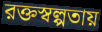
রক্তস্বল্পতায়